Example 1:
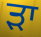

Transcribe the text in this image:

ੜਾ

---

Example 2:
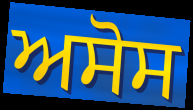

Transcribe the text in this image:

ਅਸੋਸ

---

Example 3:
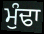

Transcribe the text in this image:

ਮੁੰਢਾ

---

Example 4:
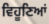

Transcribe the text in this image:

ਵਿਹੂਣਿਆਂ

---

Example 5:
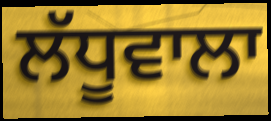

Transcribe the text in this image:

ਲੱਧੂਵਾਲਾ